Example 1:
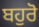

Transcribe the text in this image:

ਬਹੁਰੋ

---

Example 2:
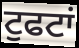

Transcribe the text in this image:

ਟੁਫਟਾਂ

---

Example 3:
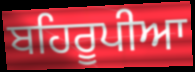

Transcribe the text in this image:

ਬਹਿਰੂਪੀਆ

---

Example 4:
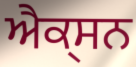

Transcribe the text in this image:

ਐਕ੍ਸਨ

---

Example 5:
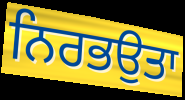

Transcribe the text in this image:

ਨਿਰਭਉਤਾ